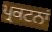
ਪ੍ਰਕਟਨਾਂ